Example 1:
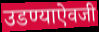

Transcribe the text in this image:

उडण्याऐवजी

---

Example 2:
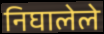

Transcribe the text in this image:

निघालेले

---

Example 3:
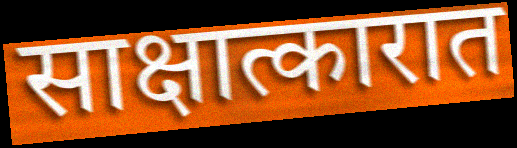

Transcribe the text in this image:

साक्षात्कारात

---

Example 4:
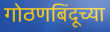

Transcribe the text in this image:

गोठणबिंदूच्या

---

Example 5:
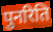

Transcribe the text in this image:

पुनरिति